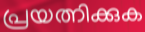
പ്രയത്നിക്കുക